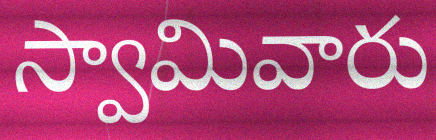
స్వామివారు